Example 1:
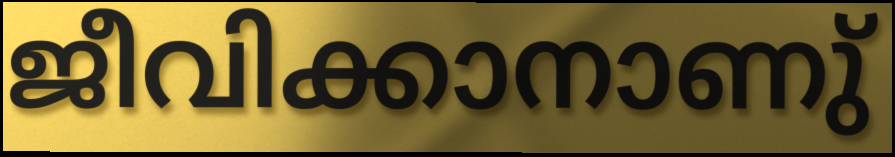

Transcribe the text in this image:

ജീവിക്കാനാണു്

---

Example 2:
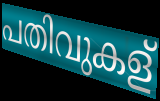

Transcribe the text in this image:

പതിവുകള്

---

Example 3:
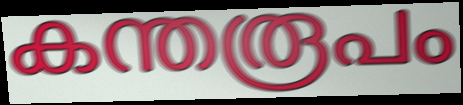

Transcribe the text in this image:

കന്തരൂപം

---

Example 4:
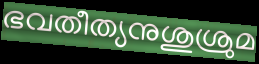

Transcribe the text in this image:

ഭവതീത്യനുശുശ്രുമ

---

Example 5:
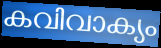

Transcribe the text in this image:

കവിവാക്യം